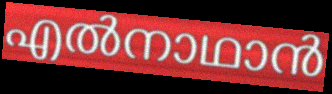
എൽനാഥാൻ